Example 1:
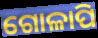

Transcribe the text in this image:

ଗୋଳାପି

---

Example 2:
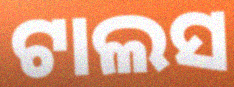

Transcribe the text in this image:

ଟାଲସ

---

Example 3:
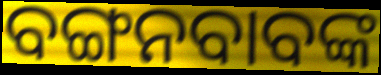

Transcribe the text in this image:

ବଙ୍ଗନବାବଙ୍କ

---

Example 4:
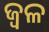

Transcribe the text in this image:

ଜ୍ୱଳ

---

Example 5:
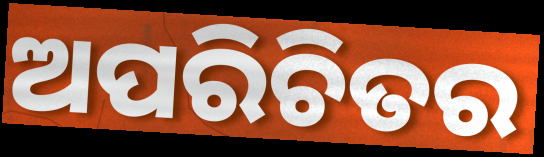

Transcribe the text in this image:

ଅପରିଚିତର